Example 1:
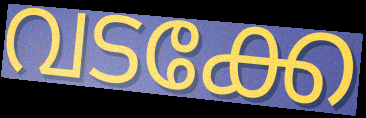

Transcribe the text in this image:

വടക്കേ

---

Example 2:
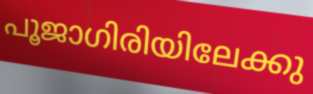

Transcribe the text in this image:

പൂജാഗിരിയിലേക്കു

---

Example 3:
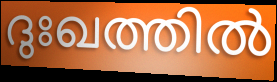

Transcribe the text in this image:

ദുഃഖത്തിൽ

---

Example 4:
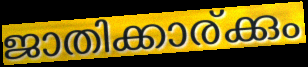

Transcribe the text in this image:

ജാതിക്കാര്ക്കും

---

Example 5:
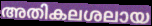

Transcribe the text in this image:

അതികലശലായ